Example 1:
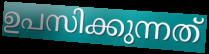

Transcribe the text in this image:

ഉപസിക്കുന്നത്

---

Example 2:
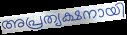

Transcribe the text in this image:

അപ്രത്യക്ഷനായി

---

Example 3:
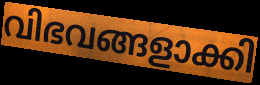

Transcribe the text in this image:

വിഭവങ്ങളാക്കി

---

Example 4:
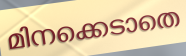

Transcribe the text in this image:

മിനക്കെടാതെ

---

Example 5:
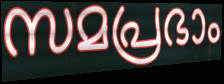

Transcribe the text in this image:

സമപ്രഭാം